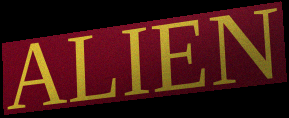
ALIEN